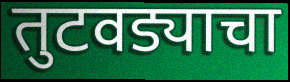
तुटवड्याचा